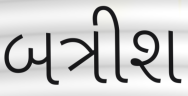
બત્રીશ